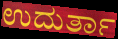
ಉದುರ್ತಾ